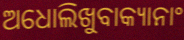
ଅଧୋଲିଖୁବାକ୍ୟାନାଂ